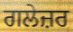
ਗਲੇਜ਼ਰ